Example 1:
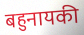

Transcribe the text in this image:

बहुनायकी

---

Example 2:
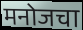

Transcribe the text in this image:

मनोजचा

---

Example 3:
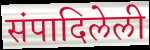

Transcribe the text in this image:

संपादिलेली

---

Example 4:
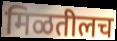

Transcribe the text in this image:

मिळतीलच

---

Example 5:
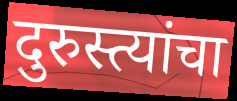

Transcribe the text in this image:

दुरुस्त्यांचा